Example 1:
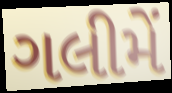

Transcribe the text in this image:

ગલીમેં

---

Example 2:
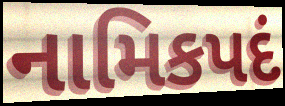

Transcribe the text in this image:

નામિકપદં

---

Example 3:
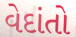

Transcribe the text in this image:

વેદાંતો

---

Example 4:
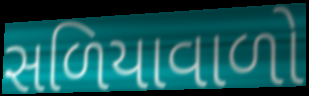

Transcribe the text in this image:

સળિયાવાળો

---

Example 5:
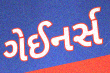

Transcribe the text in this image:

ગેઈનર્સ